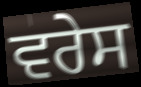
ਵਰੇਸ